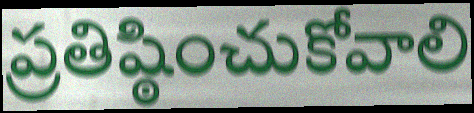
ప్రతిష్ఠించుకోవాలి